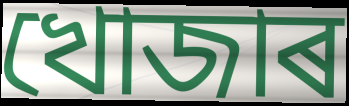
খোজাৰ